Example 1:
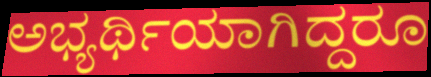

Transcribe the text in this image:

ಅಭ್ಯರ್ಥಿಯಾಗಿದ್ದರೂ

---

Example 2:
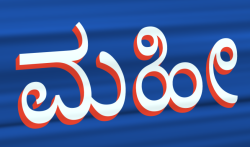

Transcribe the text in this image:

ಮಹೀ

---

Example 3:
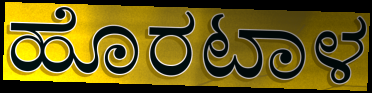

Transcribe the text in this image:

ಹೊರಟಾಳ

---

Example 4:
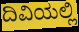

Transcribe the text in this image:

ದಿವಿಯಲ್ಲಿ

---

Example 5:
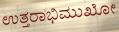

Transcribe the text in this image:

ಉತ್ತರಾಭಿಮುಖೋ